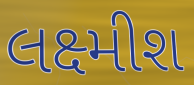
લક્ષ્મીશ